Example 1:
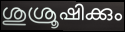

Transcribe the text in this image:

ശുശ്രൂഷിക്കും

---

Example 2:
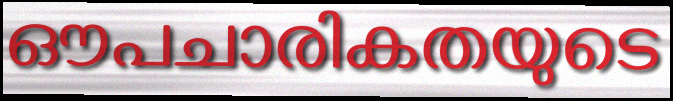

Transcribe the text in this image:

ഔപചാരികതയുടെ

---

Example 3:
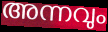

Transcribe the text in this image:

അന്നവും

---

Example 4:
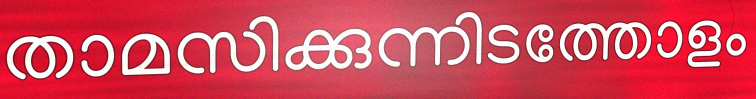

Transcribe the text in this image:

താമസിക്കുന്നിടത്തോളം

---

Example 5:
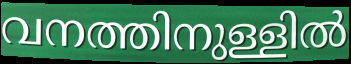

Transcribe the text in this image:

വനത്തിനുള്ളിൽ